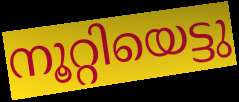
നൂറ്റിയെട്ടു